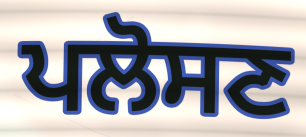
ਪਲੋਸਣ